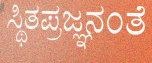
ಸ್ಥಿತಪ್ರಜ್ಞನಂತೆ